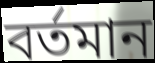
বর্তমান